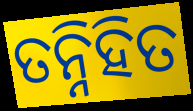
ତନ୍ନିହିତ